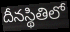
దీనస్థితిలో